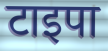
टाइपा